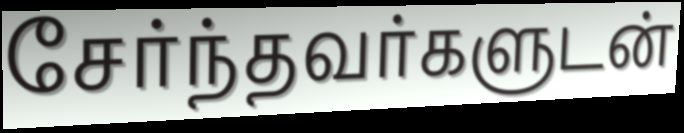
சேர்ந்தவர்களுடன்